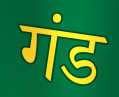
गंड